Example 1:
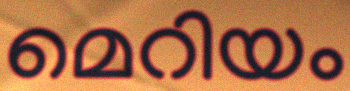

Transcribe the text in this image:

മെറിയം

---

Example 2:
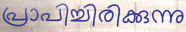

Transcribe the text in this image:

പ്രാപിച്ചിരിക്കുന്നു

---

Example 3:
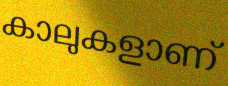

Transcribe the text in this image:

കാലുകളാണ്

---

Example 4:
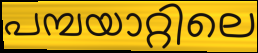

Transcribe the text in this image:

പമ്പയാറ്റിലെ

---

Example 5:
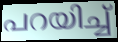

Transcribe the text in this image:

പറയിച്ച്